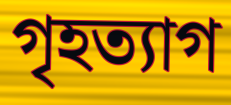
গৃহত্যাগ